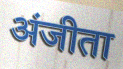
अंजीता